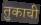
तुकाची